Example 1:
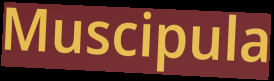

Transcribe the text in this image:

Muscipula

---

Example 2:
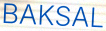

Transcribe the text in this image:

BAKSAL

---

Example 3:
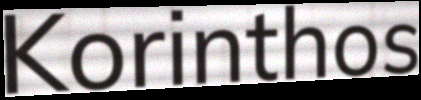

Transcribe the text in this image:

Korinthos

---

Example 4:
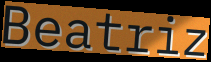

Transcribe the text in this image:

Beatriz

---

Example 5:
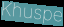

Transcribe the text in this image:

Khuspe